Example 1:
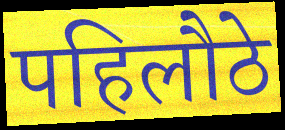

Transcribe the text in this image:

पहिलौठे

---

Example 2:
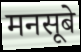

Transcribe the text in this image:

मनसूबे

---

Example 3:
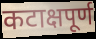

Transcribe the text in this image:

कटाक्षपूर्ण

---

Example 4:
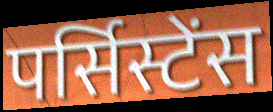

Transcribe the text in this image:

पर्सिस्टेंस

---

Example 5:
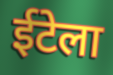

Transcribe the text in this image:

ईटेला